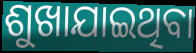
ଶୁଖାଯାଇଥିବା